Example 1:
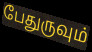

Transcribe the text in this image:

பேதுருவும்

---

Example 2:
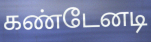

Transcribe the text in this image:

கண்டேனடி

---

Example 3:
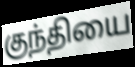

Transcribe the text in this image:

குந்தியை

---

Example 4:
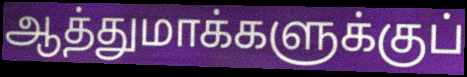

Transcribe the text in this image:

ஆத்துமாக்களுக்குப்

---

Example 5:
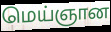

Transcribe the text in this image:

மெய்ஞான